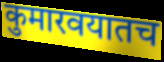
कुमारवयातच